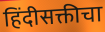
हिंदीसक्तीचा